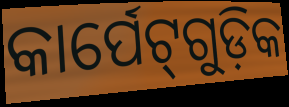
କାର୍ପେଟ୍‌ଗୁଡ଼ିକ